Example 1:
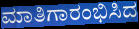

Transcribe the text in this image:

ಮಾತಿಗಾರಂಭಿಸಿದ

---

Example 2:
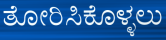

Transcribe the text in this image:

ತೋರಿಸಿಕೊಳ್ಳಲು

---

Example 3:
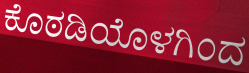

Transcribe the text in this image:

ಕೊಠಡಿಯೊಳಗಿಂದ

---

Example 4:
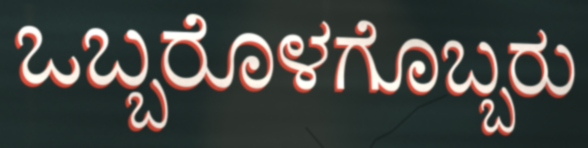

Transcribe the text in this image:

ಒಬ್ಬರೊಳಗೊಬ್ಬರು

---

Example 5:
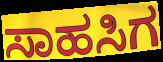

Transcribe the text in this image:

ಸಾಹಸಿಗ